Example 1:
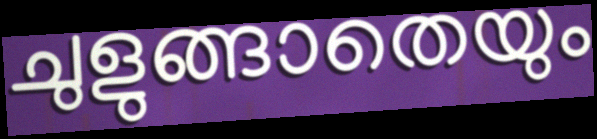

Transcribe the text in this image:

ചുളുങ്ങാതെയും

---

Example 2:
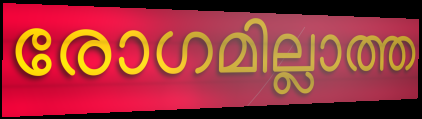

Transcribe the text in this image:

രോഗമില്ലാത്ത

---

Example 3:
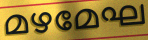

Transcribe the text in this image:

മഴമേഘ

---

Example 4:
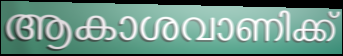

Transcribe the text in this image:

ആകാശവാണിക്ക്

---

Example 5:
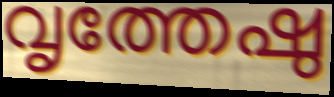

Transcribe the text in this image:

വൃത്തേഷു